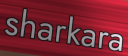
sharkara